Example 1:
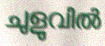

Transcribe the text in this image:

ചുളുവിൽ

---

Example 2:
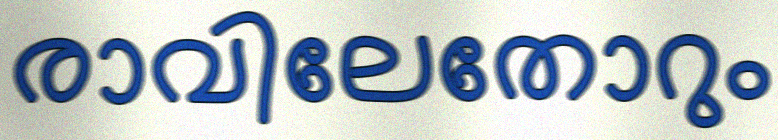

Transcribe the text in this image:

രാവിലേതോറും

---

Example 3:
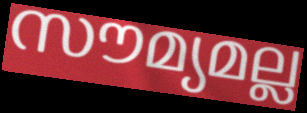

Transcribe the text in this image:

സൗമ്യമല്ല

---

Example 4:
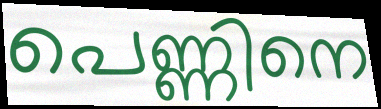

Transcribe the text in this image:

പെണ്ണിനെ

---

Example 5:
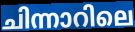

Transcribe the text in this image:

ചിന്നാറിലെ